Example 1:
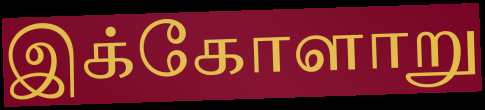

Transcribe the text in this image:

இக்கோளாறு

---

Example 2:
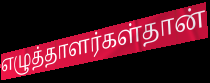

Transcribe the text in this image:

எழுத்தாளர்கள்தான்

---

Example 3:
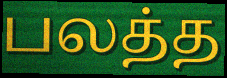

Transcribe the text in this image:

பலத்த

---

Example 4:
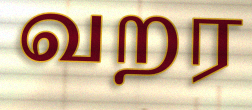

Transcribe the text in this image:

வறர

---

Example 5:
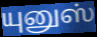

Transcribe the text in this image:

யுனுஸ்